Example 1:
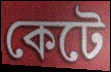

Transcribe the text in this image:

কেটে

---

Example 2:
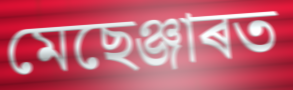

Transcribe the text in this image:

মেছেঞ্জাৰত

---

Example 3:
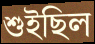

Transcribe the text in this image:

শুইছিল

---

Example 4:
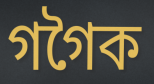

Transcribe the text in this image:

গগৈক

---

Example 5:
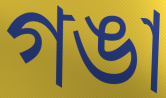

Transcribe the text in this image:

গঙা